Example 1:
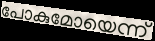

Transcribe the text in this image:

പോകുമോയെന്ന്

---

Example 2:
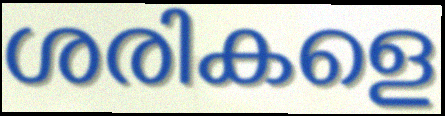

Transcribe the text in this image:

ശരികളെ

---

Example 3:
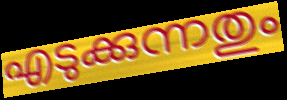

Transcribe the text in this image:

എടുക്കുന്നതും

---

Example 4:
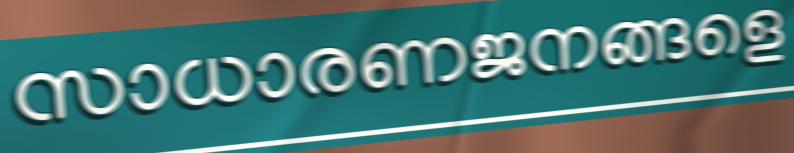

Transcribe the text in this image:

സാധാരണജനങ്ങളെ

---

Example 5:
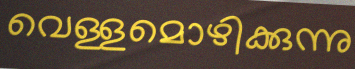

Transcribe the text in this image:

വെള്ളമൊഴിക്കുന്നു